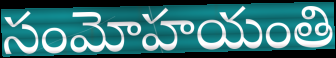
సంమోహయంతి